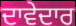
ਦਾਵੇਦਾਰ